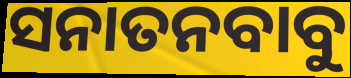
ସନାତନବାବୁ